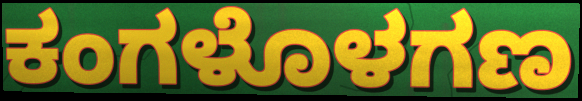
ಕಂಗಳೊಳಗಣ